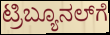
ಟ್ರಿಬ್ಯೂನಲ್‌ಗೆ